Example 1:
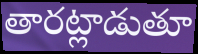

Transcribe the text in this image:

తారట్లాడుతూ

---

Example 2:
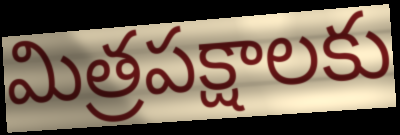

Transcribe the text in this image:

మిత్రపక్షాలకు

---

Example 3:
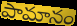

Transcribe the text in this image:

పామానం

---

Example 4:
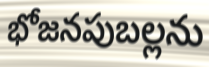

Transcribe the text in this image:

భోజనపుబల్లను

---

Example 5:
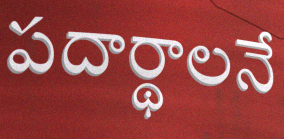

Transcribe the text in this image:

పదార్థాలనే